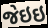
જેઇઇ